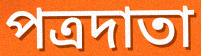
পত্রদাতা